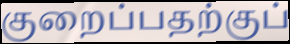
குறைப்பதற்குப்